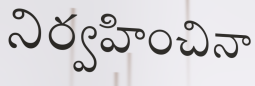
నిర్వహించినా